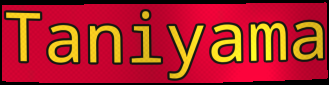
Taniyama